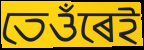
তেওঁৰেই